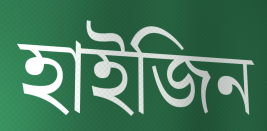
হাইজিন